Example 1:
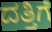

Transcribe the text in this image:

ದತ್ತಿಗೆ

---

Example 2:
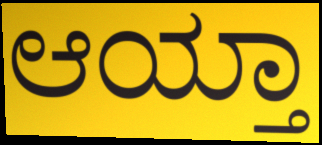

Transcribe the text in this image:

ಆಯ್ತಾ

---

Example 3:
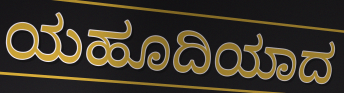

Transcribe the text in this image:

ಯಹೂದಿಯಾದ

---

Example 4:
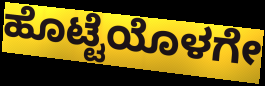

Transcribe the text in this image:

ಹೊಟ್ಟೆಯೊಳಗೇ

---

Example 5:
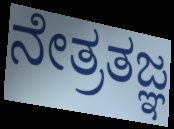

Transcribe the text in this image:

ನೇತ್ರತಜ್ಞ